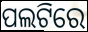
ପଲଟିରେ